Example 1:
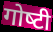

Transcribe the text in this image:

गोष्‍टी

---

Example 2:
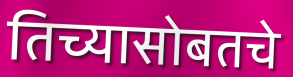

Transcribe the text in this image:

तिच्यासोबतचे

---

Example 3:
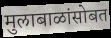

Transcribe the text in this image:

मुलाबाळांसोबत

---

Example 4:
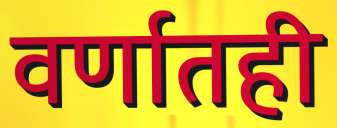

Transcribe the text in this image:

वर्णातही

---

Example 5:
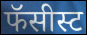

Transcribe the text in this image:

फॅसीस्ट